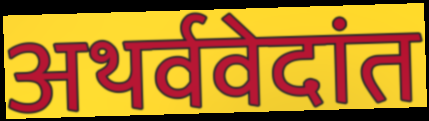
अथर्ववेदांत